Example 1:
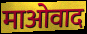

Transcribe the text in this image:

माओवाद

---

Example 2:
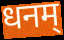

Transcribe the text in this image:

धनम्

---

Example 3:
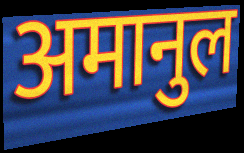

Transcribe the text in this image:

अमानुल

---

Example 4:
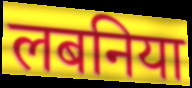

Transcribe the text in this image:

लबनिया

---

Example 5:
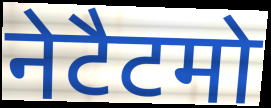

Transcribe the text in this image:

नेटैटमो